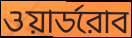
ওয়ার্ডরোব